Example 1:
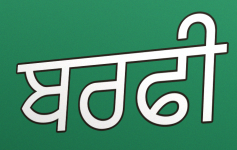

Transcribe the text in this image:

ਬਰਫੀ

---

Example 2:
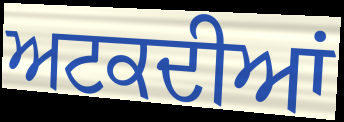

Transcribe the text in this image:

ਅਟਕਦੀਆਂ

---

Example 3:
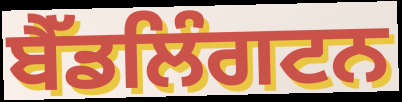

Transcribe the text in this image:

ਬੈੱਡਲਿੰਗਟਨ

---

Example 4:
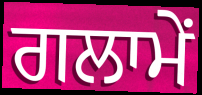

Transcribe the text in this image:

ਗਲਾਮੇਂ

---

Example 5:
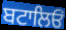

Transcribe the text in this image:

ਬਟਾਲਿਓਂ